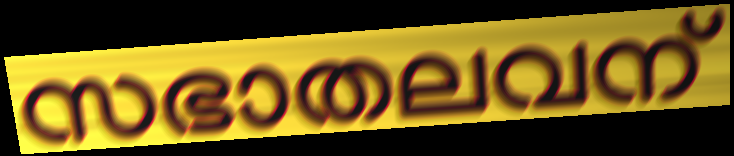
സഭാതലവന്